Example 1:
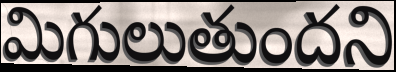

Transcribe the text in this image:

మిగులుతుందని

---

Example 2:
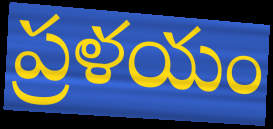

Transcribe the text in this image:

ప్రళయం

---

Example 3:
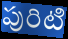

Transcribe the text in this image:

పురిటి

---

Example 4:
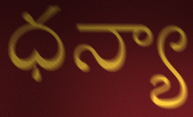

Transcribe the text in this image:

ధన్యా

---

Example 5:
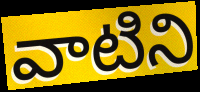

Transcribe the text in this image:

వాటిని